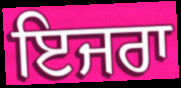
ਇਜਰਾ